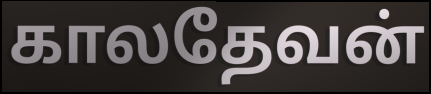
காலதேவன்